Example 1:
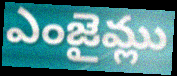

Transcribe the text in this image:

ఎంజైమ్లు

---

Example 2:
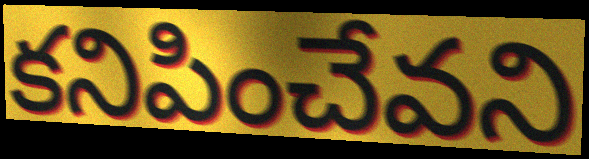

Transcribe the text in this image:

కనిపించేవని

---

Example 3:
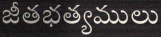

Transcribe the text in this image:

జీతభత్యములు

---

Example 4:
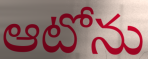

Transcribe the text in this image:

ఆటోను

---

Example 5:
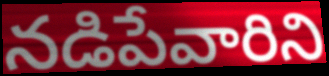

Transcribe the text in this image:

నడిపేవారిని